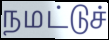
நமட்டுச்